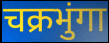
चक्रभुंगा